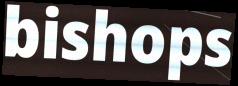
bishops